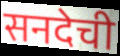
सनदेची